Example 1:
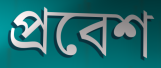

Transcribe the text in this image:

প্রবেশ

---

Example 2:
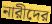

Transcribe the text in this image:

নারীদের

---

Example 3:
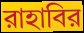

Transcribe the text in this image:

রাহাবির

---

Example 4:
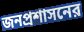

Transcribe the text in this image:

জনপ্রশাসনের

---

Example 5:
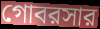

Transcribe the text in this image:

গোবরসার